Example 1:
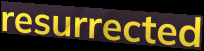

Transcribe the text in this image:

resurrected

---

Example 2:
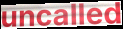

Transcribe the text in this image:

uncalled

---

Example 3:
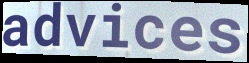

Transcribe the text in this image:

advices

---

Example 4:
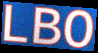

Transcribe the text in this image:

LBO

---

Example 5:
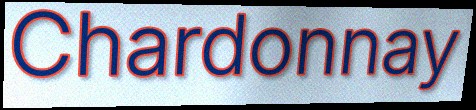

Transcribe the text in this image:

Chardonnay